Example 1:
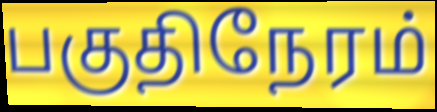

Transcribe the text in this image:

பகுதிநேரம்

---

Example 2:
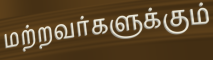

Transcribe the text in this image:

மற்றவர்களுக்கும்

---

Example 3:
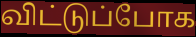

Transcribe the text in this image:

விட்டுப்போக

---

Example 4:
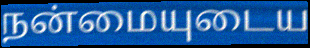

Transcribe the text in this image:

நன்மையுடைய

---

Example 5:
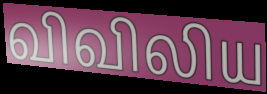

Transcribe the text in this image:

விவிலிய